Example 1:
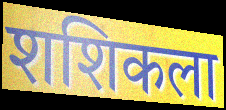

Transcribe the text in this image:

शशिकला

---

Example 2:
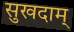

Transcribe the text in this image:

सुखदाम्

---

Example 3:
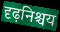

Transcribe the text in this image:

दृढ़निश्चय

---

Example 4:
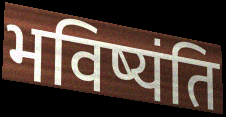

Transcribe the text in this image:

भविष्यंति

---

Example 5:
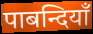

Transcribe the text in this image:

पाबन्दियाँ